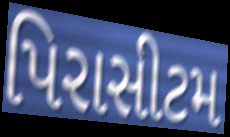
પિરાસીટમ